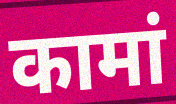
कामां